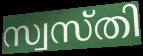
സ്വസ്തി